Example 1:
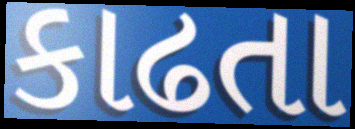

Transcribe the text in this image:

કાઢતા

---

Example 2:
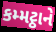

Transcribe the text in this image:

કમ્મટ્ઠાને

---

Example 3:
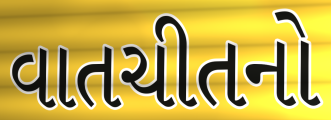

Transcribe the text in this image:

વાતચીતનો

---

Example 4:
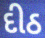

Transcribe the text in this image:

દીઠ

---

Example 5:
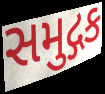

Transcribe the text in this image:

સમુદ્ગક